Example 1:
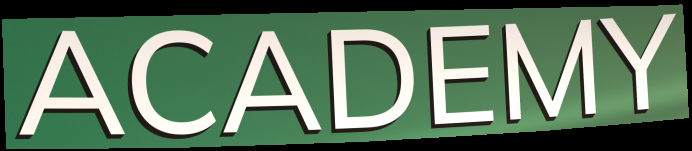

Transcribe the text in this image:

ACADEMY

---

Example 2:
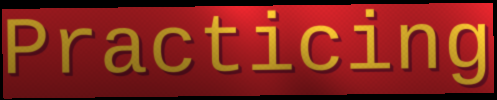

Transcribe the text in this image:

Practicing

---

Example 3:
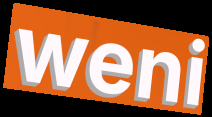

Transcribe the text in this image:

weni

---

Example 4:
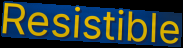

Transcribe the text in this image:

Resistible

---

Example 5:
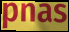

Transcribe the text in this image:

pnas